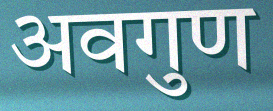
अवगुण